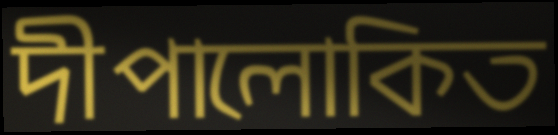
দীপালোকিত